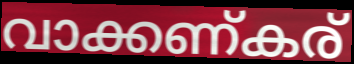
വാക്കണ്കര്